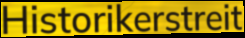
Historikerstreit